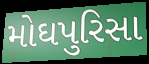
મોઘપુરિસા